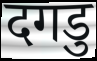
दगडु